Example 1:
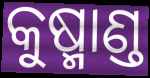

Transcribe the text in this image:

କୁଷ୍ମାଣ୍ଡ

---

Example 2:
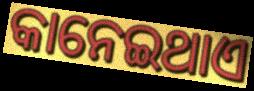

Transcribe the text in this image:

କାନେଇଥାଏ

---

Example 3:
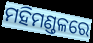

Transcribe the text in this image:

ମହିମଣ୍ଡଳରେ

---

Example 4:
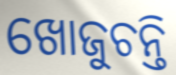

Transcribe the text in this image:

ଖୋଜୁଚନ୍ତି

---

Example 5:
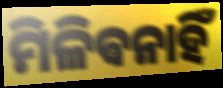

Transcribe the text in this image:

ମିଳିଵନାହିଁ